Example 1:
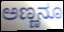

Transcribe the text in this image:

ಅಣ್ಣನೂ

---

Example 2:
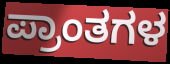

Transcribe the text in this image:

ಪ್ರಾಂತಗಳ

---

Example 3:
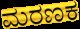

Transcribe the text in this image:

ಮರಣಕ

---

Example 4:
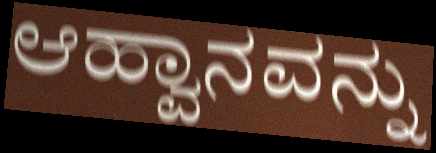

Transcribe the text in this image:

ಆಹ್ವಾನವನ್ನು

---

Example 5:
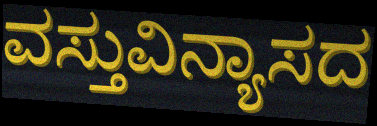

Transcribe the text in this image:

ವಸ್ತುವಿನ್ಯಾಸದ